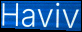
Haviv